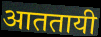
आततायी